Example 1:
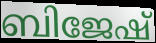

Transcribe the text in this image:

ബിജേഷ്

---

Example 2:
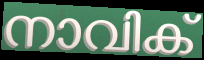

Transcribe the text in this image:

നാവിക്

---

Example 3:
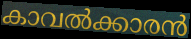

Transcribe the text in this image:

കാവൽക്കാരൻ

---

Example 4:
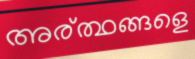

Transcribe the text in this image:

അര്ത്ഥങ്ങളെ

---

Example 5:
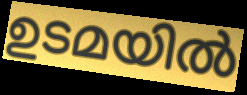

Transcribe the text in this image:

ഉടമയിൽ